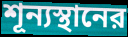
শূন্যস্থানের